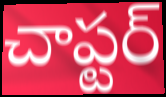
చాప్టర్